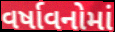
વર્ષાવનોમાં